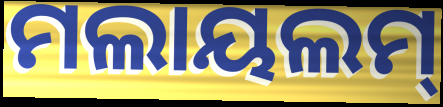
ମଲାୟଲମ୍